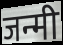
जन्मी